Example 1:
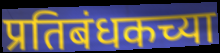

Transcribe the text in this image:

प्रतिबंधकच्या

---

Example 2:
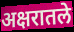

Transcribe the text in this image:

अक्षरातले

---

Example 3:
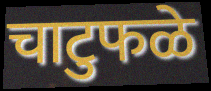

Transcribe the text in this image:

चाटुफळे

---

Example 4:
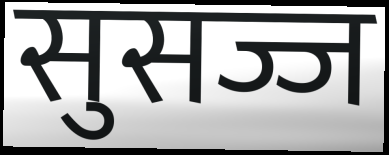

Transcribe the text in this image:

सुसज्ज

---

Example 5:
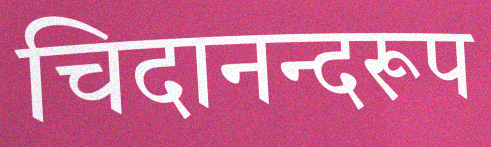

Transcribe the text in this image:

चिदानन्दरूप